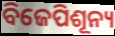
ବିଜେପିଶୂନ୍ୟ